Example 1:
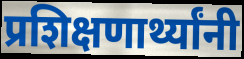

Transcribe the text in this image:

प्रशिक्षणार्थ्यांनी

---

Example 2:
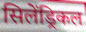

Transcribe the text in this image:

सिलेंड्रिकल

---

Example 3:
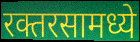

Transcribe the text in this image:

रक्तरसामध्ये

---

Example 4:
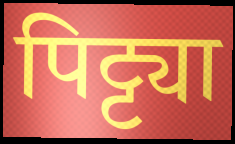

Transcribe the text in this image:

पिट्ट्या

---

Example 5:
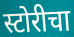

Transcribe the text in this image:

स्टोरीचा